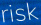
risk